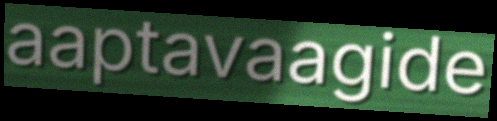
aaptavaagide